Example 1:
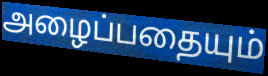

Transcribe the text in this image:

அழைப்பதையும்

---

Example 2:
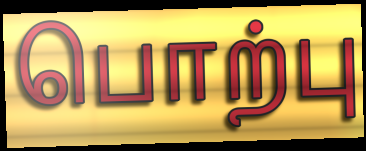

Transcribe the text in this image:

பொற்பு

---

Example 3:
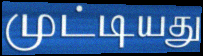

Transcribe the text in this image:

முட்டியது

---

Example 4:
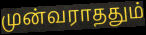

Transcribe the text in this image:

முன்வராததும்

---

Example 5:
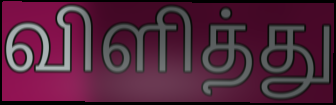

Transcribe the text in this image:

விளித்து